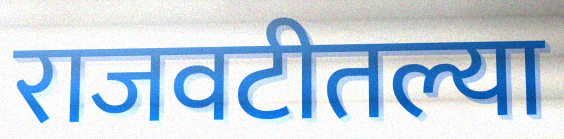
राजवटीतल्या